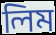
লিম